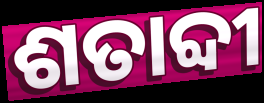
ଶତାବ୍ଦୀ